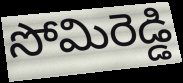
సోమిరెడ్డి